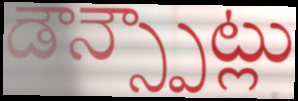
డౌన్స్పౌట్లు